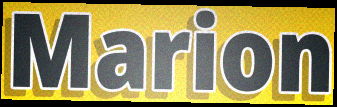
Marion